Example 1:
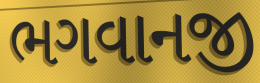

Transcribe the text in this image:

ભગવાનજી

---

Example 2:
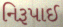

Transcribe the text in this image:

નિરૂપાઈ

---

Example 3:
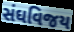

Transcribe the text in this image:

સંઘવિજય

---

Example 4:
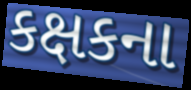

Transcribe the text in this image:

કક્ષકના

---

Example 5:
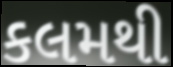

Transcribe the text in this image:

કલમથી